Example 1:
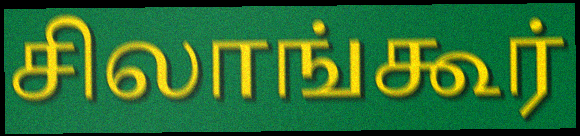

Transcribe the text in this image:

சிலாங்கூர்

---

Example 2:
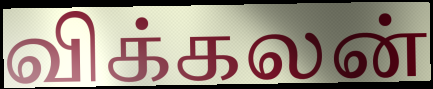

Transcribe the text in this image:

விக்கலன்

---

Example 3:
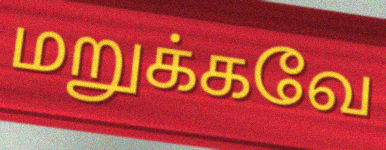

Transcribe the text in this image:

மறுக்கவே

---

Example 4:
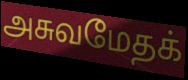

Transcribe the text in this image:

அசுவமேதக்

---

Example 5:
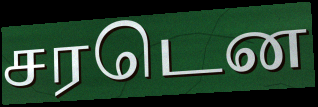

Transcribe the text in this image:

சரடென